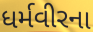
ધર્મવીરના